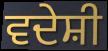
ਵਦੇਸ਼ੀ